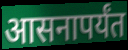
आसनापर्यंत